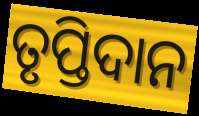
ତୃପ୍ତିଦାନ